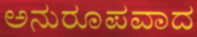
ಅನುರೂಪವಾದ